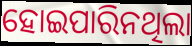
ହୋଇପାରିନଥିଲା